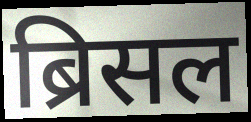
ब्रिसल